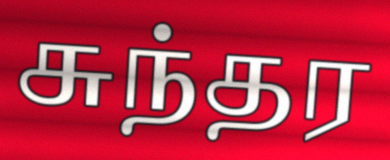
சுந்தர